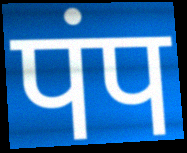
पंप